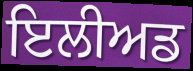
ਇਲੀਅਡ